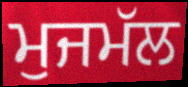
ਮੁਜਮੱਲ